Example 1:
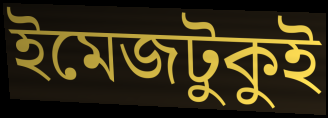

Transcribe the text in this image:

ইমেজটুকুই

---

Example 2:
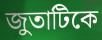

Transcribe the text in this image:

জুতাটিকে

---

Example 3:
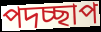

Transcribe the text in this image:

পদচ্ছাপ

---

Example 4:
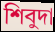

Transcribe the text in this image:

শিবুদা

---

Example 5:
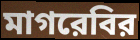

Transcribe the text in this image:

মাগরেবির